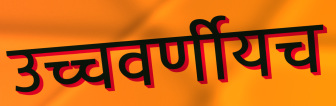
उच्चवर्णीयच